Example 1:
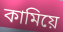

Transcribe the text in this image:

কামিয়ে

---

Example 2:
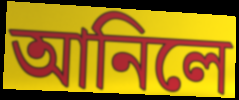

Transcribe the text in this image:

আনিলে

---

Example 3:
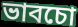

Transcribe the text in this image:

ভাবচো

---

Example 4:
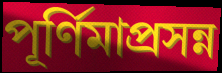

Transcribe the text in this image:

পূর্ণিমাপ্রসন্ন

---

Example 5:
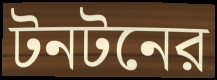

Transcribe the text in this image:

টনটনের